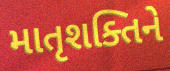
માતૃશક્તિને